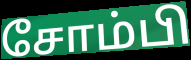
சோம்பி